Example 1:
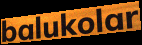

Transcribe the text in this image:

balukolar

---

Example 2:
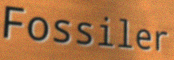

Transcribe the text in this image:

Fossiler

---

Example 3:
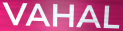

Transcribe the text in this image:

VAHAL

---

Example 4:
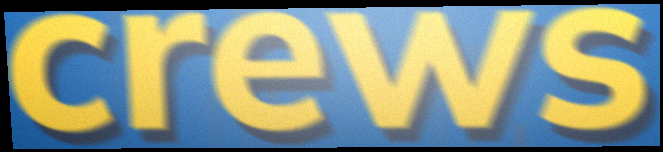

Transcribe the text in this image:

crews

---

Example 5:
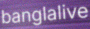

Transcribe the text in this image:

banglalive